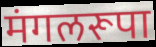
मंगलरूपा